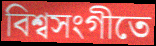
বিশ্বসংগীতে